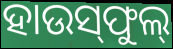
ହାଉସ୍‌ଫୁଲ୍